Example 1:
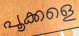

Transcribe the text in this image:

പൂക്കളെ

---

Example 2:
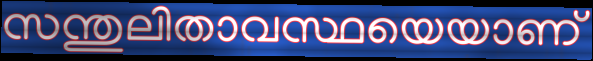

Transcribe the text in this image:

സന്തുലിതാവസ്ഥയെയാണ്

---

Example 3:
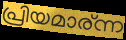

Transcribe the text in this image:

പ്രിയമാര്ന്ന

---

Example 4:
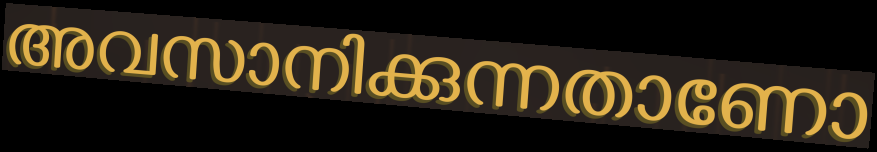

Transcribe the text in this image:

അവസാനിക്കുന്നതാണോ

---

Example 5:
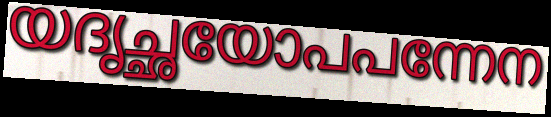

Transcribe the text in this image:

യദൃച്ഛയോപപന്നേന